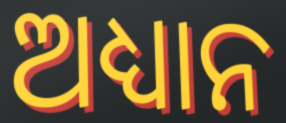
ଅଧ୍ୟାନ